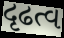
દૃઢત્વ